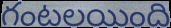
గంటలయింది